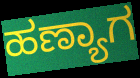
ಹಣ್ಯಾಗ